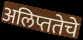
अलिप्ततेचे